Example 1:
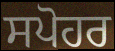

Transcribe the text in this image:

ਸਪੋਹਰ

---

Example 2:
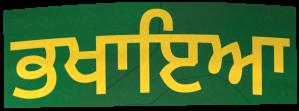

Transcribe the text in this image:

ਭਖਾਇਆ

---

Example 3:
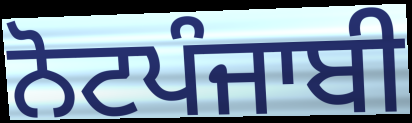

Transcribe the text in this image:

ਨੋਟਪੰਜਾਬੀ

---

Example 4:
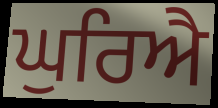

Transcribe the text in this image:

ਘੁਰਿਐ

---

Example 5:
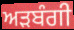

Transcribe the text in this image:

ਅੜਬੰਗੀ